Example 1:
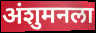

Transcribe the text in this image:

अंशुमनला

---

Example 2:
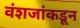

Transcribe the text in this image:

वंशजांकडून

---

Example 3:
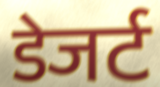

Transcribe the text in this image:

डेजर्ट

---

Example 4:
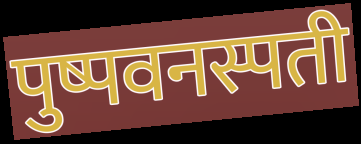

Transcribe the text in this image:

पुष्पवनस्पती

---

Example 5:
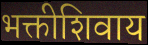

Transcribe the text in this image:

भक्तीशिवाय